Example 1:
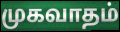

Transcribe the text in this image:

முகவாதம்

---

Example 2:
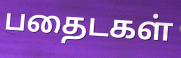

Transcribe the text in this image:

பதைடகள்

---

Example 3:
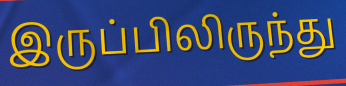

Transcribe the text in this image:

இருப்பிலிருந்து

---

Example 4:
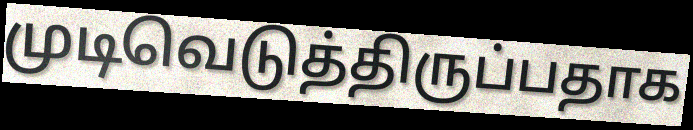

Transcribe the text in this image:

முடிவெடுத்திருப்பதாக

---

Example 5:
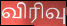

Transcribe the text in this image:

விரிவு